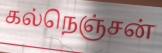
கல்நெஞ்சன்